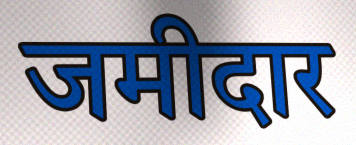
जमीदार